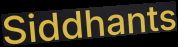
Siddhants